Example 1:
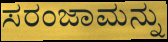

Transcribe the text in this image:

ಸರಂಜಾಮನ್ನು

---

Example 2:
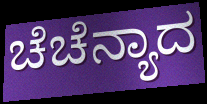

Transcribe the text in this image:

ಚೆಚೆನ್ಯಾದ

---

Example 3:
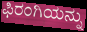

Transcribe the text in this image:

ಫಿರಂಗಿಯನ್ನು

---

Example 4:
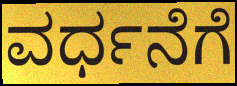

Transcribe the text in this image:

ವರ್ಧನೆಗೆ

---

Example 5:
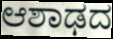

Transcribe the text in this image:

ಆಶಾಢದ